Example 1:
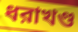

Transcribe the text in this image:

ধরাখণ্ড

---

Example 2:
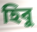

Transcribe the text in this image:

হিবু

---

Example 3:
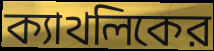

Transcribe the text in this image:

ক্যাথলিকের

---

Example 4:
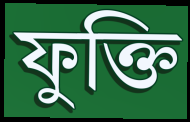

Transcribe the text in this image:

ফুক্তি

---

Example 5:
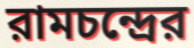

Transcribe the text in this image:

রামচন্দ্রের